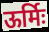
ऊर्मिः